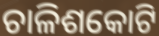
ଚାଳିଶକୋଟି